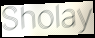
Sholay